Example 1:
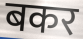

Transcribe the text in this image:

बकर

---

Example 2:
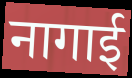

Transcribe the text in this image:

नागाई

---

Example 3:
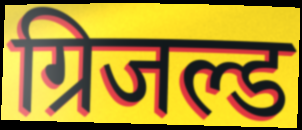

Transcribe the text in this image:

ग्रिजल्ड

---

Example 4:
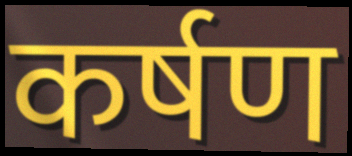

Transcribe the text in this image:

कर्षण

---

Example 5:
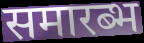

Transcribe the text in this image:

समारब्भ